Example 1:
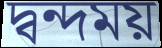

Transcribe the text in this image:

দ্বন্দময়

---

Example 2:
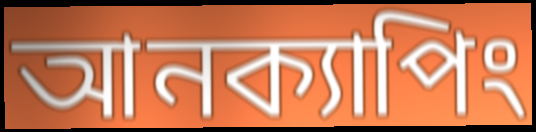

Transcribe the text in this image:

আনক্যাপিং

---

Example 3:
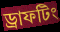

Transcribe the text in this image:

ড্রাফটিং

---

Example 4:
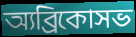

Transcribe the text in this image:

অ্যব্রিকোসভ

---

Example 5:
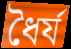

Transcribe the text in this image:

ধৈর্য